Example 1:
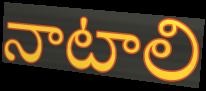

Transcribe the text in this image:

నాటాలి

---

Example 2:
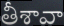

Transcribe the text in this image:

తీశావా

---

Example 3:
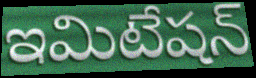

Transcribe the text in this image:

ఇమిటేషన్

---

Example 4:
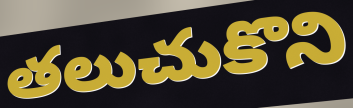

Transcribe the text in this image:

తలుచుకొని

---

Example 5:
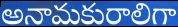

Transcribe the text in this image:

అనామకురాలిగా